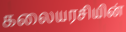
கலையரசியின்